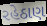
રહેઠાણ